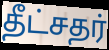
தீட்சதர்